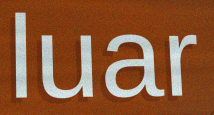
luar